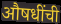
औषधींची